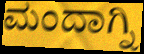
ಮಂದಾಗ್ನಿ